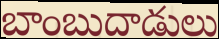
బాంబుదాడులు